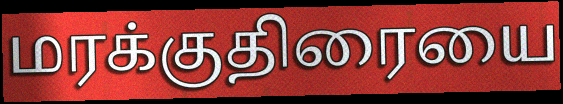
மரக்குதிரையை